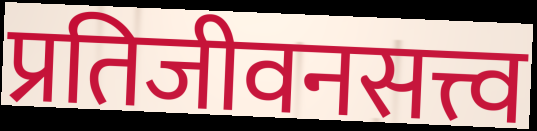
प्रतिजीवनसत्त्व